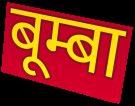
बूम्बा